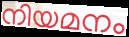
നിയമനം